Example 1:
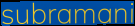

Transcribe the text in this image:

subramani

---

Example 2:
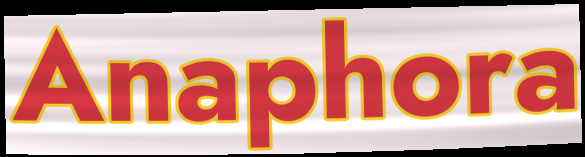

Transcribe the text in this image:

Anaphora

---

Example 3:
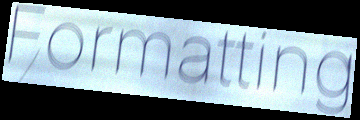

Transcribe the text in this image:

Formatting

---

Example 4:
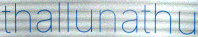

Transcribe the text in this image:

thallunathu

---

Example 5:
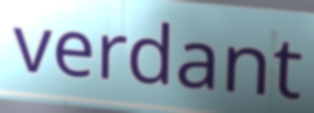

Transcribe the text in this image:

verdant